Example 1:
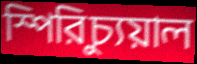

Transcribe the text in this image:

স্পিরিচ্যুয়াল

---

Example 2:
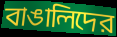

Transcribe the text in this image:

বাঙালিদের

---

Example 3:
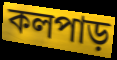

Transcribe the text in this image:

কলপাড়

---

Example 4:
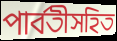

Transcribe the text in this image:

পার্বতীসহিত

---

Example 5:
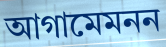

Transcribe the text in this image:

আগামেমনন